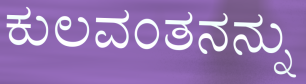
ಕುಲವಂತನನ್ನು